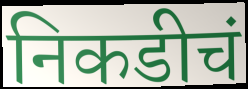
निकडीचं